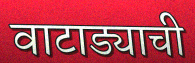
वाटाड्याची